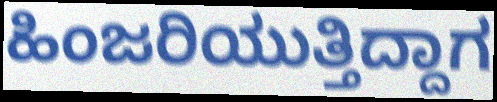
ಹಿಂಜರಿಯುತ್ತಿದ್ದಾಗ